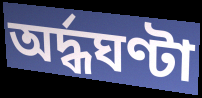
অর্দ্ধঘণ্টা